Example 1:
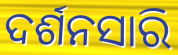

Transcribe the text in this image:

ଦର୍ଶନସାରି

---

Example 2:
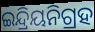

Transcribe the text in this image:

ଇନ୍ଦ୍ରିୟନିଗ୍ରହ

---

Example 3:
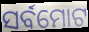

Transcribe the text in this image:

ସର୍ବମୋଟ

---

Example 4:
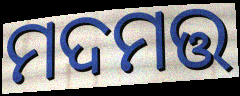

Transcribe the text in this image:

ମଦମତ୍ତ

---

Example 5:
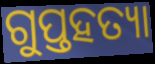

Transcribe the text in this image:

ଗୁପ୍ତହତ୍ୟା